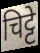
चिट्टे